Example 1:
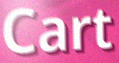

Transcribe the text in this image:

Cart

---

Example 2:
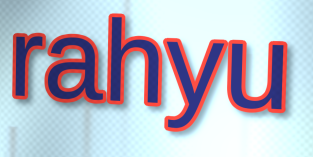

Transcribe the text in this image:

rahyu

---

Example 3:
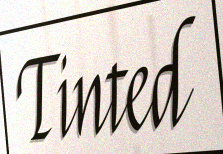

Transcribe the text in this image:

Tinted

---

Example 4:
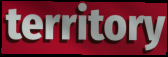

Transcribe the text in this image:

territory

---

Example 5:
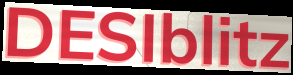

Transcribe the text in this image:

DESIblitz